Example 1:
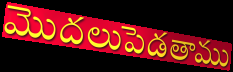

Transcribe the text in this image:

మొదలుపెడతాము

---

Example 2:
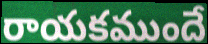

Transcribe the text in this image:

రాయకముందే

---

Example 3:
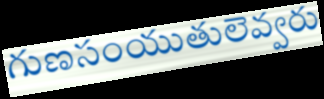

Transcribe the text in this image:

గుణసంయుతులెవ్వరు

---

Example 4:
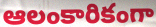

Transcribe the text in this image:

ఆలంకారికంగా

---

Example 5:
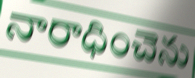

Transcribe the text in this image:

నారాధించెను